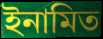
ইনামিত